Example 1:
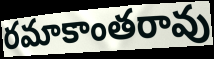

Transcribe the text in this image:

రమాకాంతరావు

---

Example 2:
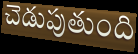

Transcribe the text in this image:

చెడుపుతుంది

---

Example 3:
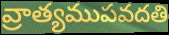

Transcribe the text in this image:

వ్రాత్యముపవదతి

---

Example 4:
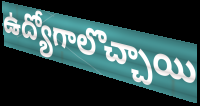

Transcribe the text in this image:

ఉద్యోగాలొచ్చాయి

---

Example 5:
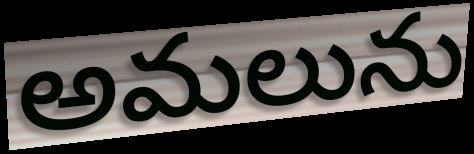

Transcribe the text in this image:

అమలును